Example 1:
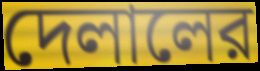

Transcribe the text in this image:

দেলালের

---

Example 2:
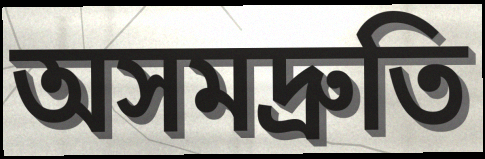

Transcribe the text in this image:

অসমদ্রুতি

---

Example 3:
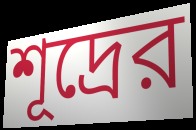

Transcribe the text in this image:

শূদ্রের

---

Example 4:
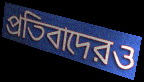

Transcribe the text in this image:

প্রতিবাদেরও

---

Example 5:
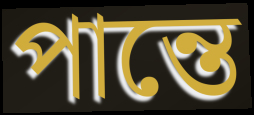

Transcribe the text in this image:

পান্তে